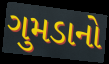
ગુમડાનો